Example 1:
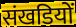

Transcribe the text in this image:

संखडियों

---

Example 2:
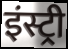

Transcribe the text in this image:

इंस्ट्री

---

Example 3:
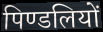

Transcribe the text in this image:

पिण्डलियों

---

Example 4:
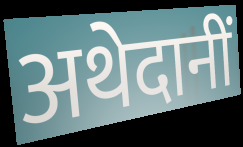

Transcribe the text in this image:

अथेदानीं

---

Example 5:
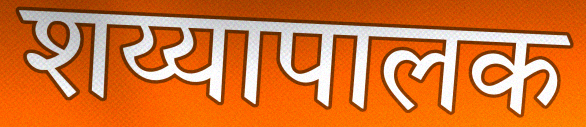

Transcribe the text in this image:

शय्यापालक